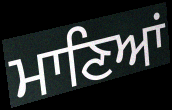
ਮਾਣਿਆਂ